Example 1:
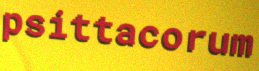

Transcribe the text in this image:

psittacorum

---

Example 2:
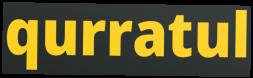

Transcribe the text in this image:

qurratul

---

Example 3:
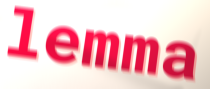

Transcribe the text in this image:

lemma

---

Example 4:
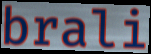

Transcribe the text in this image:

brali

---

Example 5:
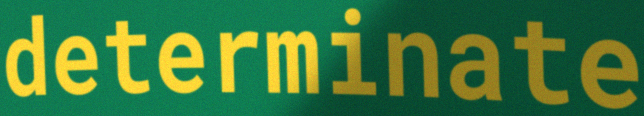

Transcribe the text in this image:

determinate